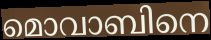
മൊവാബിനെ